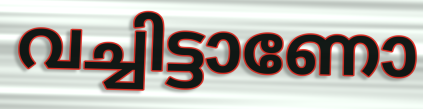
വച്ചിട്ടാണോ